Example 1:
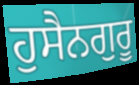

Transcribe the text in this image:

ਹੁਸੈਨਗੁਰੂ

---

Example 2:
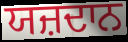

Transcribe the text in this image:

ਯਜ਼ਦਾਨ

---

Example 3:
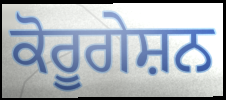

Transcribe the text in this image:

ਕੋਰੂਗੇਸ਼ਨ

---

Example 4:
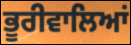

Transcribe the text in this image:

ਭੂਰੀਵਾਲਿਆਂ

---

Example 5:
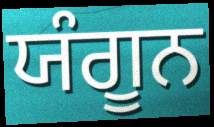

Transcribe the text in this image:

ਯੰਗੂਨ